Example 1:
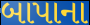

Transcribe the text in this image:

બાપાના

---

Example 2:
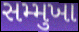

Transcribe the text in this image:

સમ્મુખા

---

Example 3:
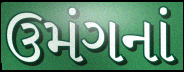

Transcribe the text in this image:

ઉમંગનાં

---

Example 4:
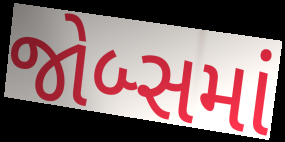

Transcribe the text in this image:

જોબ્સમાં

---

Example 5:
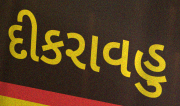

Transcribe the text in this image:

દીકરાવહુ